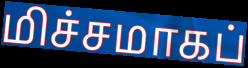
மிச்சமாகப்